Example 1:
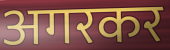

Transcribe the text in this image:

अगरकर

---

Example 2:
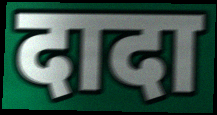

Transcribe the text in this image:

दादा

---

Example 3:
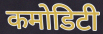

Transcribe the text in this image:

कमोडिटी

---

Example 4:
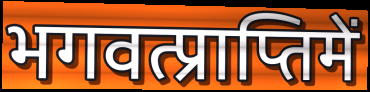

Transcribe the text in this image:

भगवत्प्राप्तिमें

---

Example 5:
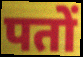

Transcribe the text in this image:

पतों